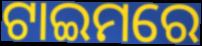
ଟାଇମରେ